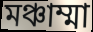
মঞ্চাম্মা